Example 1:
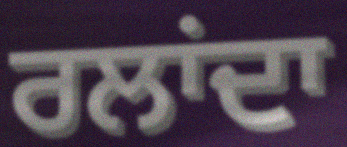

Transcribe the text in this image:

ਰਲਾਂਦਾ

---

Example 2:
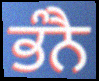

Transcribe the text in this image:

ਭੰਨੈ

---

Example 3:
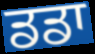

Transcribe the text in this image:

ਡਡਾ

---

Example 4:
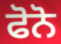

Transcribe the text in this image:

ਫੋਨੋ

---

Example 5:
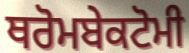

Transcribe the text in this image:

ਥਰੋਮਬੇਕਟੋਮੀ